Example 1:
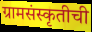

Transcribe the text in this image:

ग्रामसंस्कृतीची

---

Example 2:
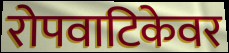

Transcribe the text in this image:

रोपवाटिकेवर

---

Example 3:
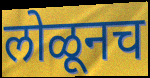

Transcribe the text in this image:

लोळूनच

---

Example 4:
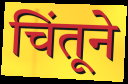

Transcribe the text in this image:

चिंतूने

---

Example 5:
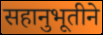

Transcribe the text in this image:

सहानुभूतीने